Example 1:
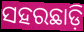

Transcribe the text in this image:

ସହରଛାଡ଼ି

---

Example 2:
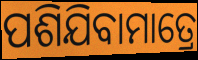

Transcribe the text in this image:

ପଶିଯିବାମାତ୍ରେ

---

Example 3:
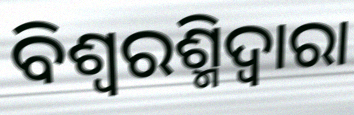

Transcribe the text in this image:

ବିଶ୍ୱରଶ୍ମିଦ୍ୱାରା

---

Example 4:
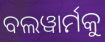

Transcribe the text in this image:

ବଲୱାର୍ମକୁ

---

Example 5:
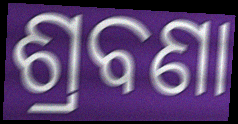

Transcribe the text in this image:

ଶ୍ରବଣା